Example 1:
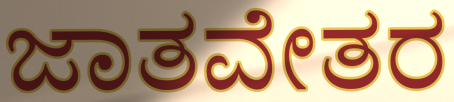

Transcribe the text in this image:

ಜಾತವೇತರ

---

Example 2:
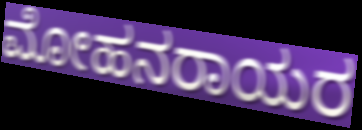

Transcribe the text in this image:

ಮೋಹನರಾಯರ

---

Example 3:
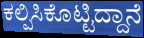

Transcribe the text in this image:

ಕಲ್ಪಿಸಿಕೊಟ್ಟಿದ್ದಾನೆ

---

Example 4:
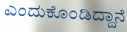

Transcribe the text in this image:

ಎಂದುಕೊಂಡಿದ್ದಾನೆ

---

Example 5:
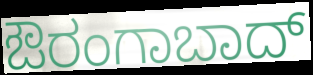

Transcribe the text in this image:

ಔರಂಗಾಬಾದ್